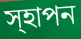
স্হাপন